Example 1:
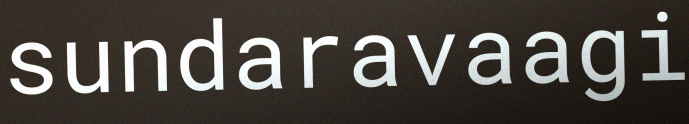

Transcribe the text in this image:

sundaravaagi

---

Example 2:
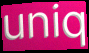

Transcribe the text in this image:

uniq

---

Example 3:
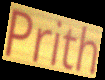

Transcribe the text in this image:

Prith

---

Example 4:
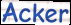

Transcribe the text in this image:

Acker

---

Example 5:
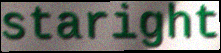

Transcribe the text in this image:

staright